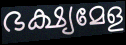
ഭക്ഷ്യമേള